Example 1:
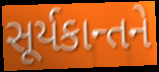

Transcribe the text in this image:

સૂર્યકાન્તને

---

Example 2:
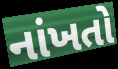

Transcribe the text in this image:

નાંખતો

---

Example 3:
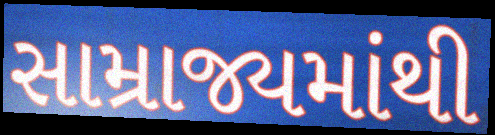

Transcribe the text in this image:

સામ્રાજ્યમાંથી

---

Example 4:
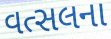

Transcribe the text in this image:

વત્સલના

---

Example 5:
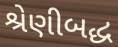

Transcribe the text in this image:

શ્રેણીબદ્ધ